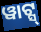
ୱାଟ୍ସ୍